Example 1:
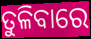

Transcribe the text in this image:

ତୁଳିବାରେ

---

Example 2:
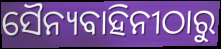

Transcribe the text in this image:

ସୈନ୍ୟବାହିନୀଠାରୁ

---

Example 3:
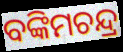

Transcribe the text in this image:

ବଙ୍କିମଚନ୍ଦ୍ର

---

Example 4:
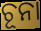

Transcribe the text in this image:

ଚୂନା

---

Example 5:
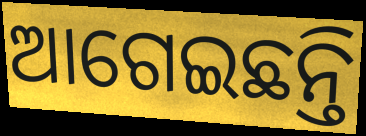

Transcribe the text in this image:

ଆଗେଇଛନ୍ତି